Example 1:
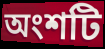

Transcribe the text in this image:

অংশটি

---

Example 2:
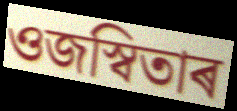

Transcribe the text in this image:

ওজস্বিতাৰ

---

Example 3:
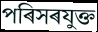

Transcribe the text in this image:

পৰিসৰযুক্ত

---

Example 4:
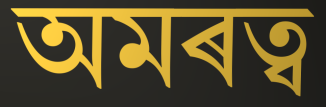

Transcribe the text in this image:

অমৰত্ব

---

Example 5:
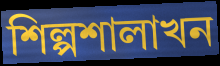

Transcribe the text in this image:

শিল্পশালাখন